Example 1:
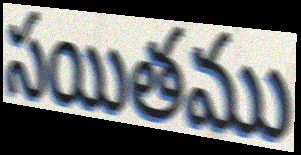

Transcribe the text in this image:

సయితము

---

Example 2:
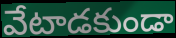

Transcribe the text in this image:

వేటాడకుండా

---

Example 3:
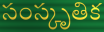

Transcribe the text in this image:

సంస్కృతిక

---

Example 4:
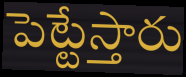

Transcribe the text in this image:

పెట్టేస్తారు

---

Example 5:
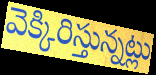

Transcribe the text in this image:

వెక్కిరిస్తున్నట్లు